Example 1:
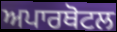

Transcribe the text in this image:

ਅਪਾਰਥੋਟਲ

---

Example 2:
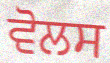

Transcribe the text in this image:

ਵੋਲਸ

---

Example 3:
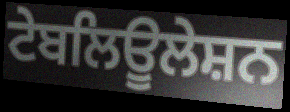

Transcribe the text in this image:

ਟੇਬਲਿਊਲੇਸ਼ਨ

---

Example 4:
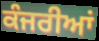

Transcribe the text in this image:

ਕੰਜਰੀਆਂ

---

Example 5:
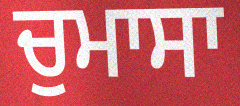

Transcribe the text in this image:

ਚੁਮਾਸਾ